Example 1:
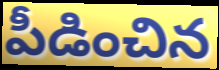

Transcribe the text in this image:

పీడించిన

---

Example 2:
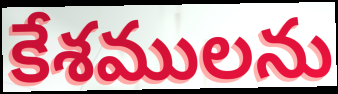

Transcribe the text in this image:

కేశములను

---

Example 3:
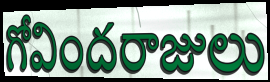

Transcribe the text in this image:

గోవిందరాజులు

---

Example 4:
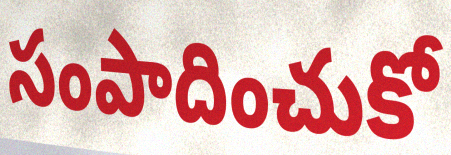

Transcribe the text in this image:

సంపాదించుకో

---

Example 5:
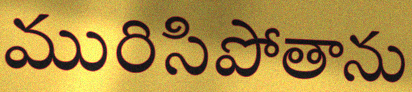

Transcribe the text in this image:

మురిసిపోతాను